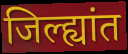
जिल्ह्यांत